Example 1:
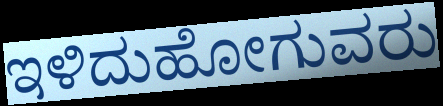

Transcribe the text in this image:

ಇಳಿದುಹೋಗುವರು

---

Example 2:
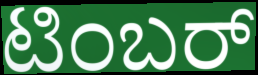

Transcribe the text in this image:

ಟಿಂಬರ್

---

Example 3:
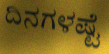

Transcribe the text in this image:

ದಿನಗಳಷ್ಟೆ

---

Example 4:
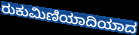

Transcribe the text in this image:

ರುಕುಮಿಣಿಯಾದಿಯಾದ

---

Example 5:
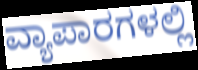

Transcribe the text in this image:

ವ್ಯಾಪಾರಗಳಲ್ಲಿ